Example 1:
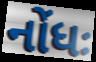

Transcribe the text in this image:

નોંધઃ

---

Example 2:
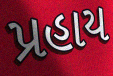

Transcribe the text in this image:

પ્રહાય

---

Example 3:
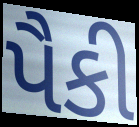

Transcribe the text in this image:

પૈકી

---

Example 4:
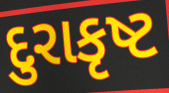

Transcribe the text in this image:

દુરાકૃષ્ટ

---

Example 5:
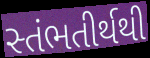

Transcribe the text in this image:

સ્તંભતીર્થથી